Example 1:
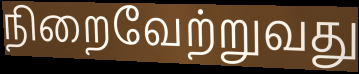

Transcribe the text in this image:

நிறைவேற்றுவது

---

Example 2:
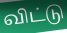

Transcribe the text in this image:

விட்டு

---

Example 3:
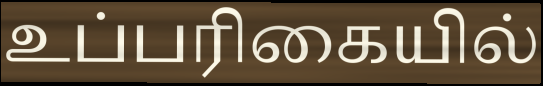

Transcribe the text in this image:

உப்பரிகையில்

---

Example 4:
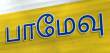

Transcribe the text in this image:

பாமேவு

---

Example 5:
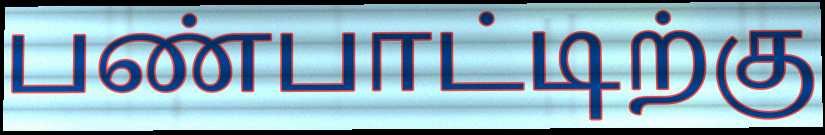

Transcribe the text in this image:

பண்பாட்டிற்கு